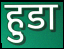
हुडा